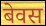
बेवस